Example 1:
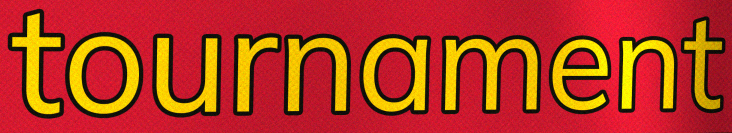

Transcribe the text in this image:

tournament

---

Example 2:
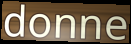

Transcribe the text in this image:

donne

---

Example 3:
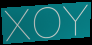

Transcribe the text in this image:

XOY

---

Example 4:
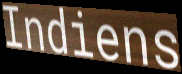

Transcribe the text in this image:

Indiens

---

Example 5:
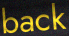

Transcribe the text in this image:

back